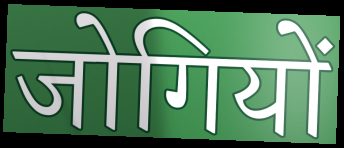
जोगियों